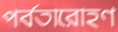
পর্বতারোহণ